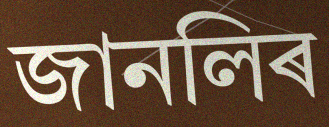
জানলিৰ